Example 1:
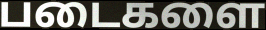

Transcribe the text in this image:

படைகளை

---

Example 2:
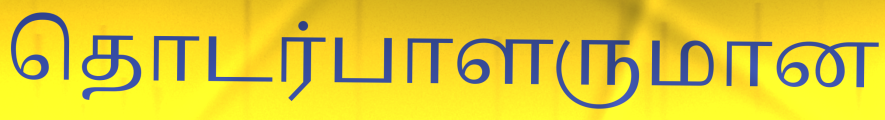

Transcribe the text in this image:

தொடர்பாளருமான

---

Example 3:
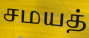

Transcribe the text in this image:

சமயத்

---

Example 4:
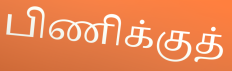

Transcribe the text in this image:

பிணிக்குத்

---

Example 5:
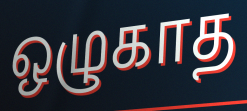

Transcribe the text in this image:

ஒழுகாத